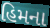
હિમના